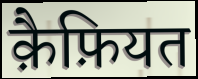
क़ैफ़ियत